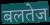
बलतेज